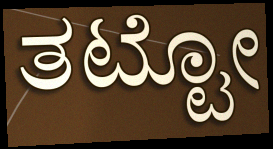
ತಟ್ಟೋ